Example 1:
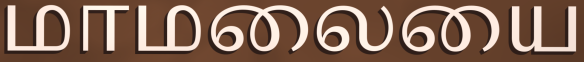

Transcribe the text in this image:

மாமலையை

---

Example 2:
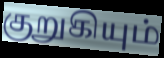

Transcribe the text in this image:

குறுகியும்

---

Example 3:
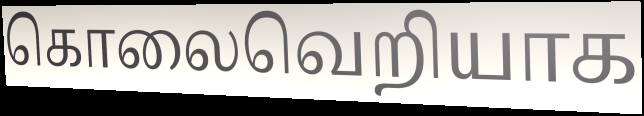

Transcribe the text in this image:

கொலைவெறியாக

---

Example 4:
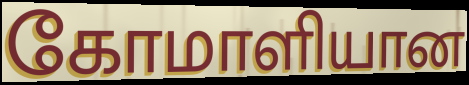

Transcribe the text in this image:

கோமாளியான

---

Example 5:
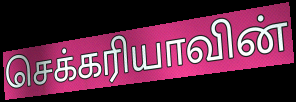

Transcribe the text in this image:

செக்கரியாவின்